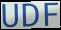
UDF